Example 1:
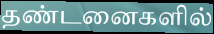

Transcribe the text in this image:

தண்டனைகளில்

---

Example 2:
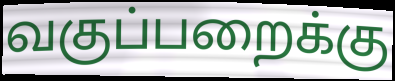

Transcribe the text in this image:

வகுப்பறைக்கு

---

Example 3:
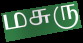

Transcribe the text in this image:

மசுரு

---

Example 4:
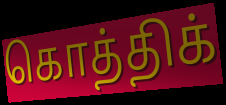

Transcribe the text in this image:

கொத்திக்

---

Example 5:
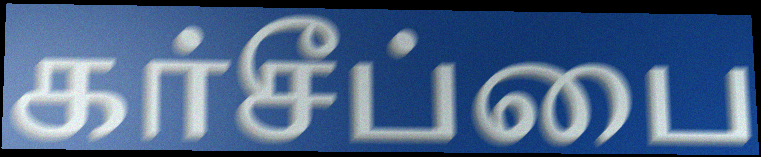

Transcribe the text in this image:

கர்சீப்பை